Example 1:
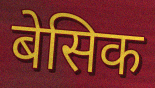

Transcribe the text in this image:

बेसिक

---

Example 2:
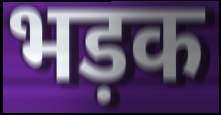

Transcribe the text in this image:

भड़क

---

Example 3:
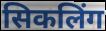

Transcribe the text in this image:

सिकलिंग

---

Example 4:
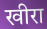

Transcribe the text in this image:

खीरा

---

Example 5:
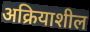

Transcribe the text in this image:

अक्रियाशील